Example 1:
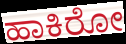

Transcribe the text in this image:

ಹಾಕಿರೋ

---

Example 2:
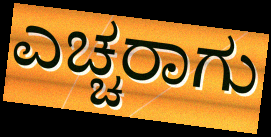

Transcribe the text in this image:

ಎಚ್ಚರಾಗು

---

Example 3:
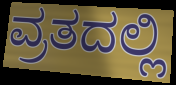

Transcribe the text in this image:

ವ್ರತದಲ್ಲಿ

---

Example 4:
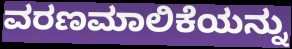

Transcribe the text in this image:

ವರಣಮಾಲಿಕೆಯನ್ನು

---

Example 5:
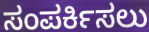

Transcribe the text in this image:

ಸಂಪರ್ಕಿಸಲು